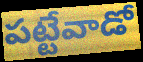
పట్టేవాడో